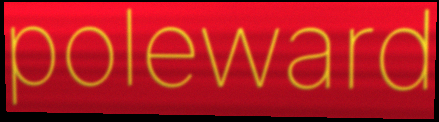
poleward